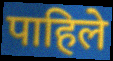
पाहिले